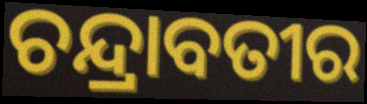
ଚନ୍ଦ୍ରାବତୀର